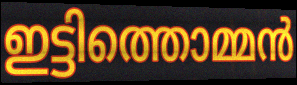
ഇട്ടിത്തൊമ്മൻ